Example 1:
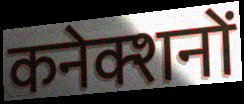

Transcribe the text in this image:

कनेक्शनों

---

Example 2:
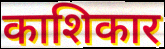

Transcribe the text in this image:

काशिकार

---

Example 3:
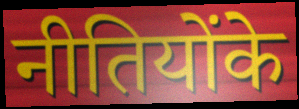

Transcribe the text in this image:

नीतियोंके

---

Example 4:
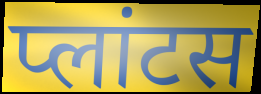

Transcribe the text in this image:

प्लांटस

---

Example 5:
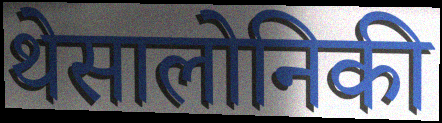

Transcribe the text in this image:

थेसालोनिकी